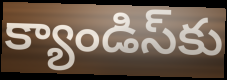
క్యాండిస్‌కు